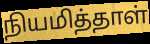
நியமித்தாள்